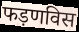
फड़णविस